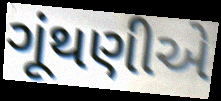
ગૂંથણીએ